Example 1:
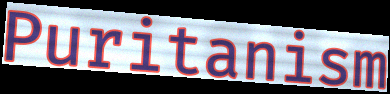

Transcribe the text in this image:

Puritanism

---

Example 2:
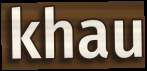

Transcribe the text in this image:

khau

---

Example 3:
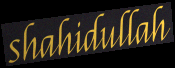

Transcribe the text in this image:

shahidullah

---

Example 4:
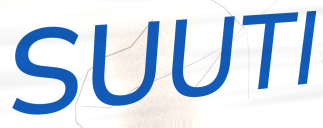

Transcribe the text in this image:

SUUTI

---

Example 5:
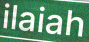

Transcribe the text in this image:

ilaiah